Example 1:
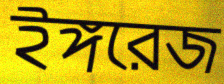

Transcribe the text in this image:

ইঙ্গরেজ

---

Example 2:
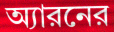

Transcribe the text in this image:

অ্যারনের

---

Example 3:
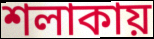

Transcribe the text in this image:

শলাকায়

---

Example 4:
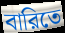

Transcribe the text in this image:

বারিতে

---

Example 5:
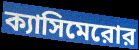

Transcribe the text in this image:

ক্যাসিমেরোর